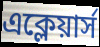
এক্লেয়ার্স